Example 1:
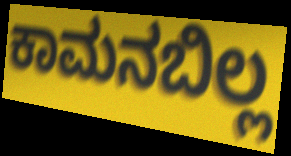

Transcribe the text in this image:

ಕಾಮನಬಿಲ್ಲ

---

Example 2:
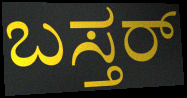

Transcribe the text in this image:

ಬಸ್ತರ್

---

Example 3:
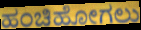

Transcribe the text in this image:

ಹಂಚಿಹೋಗಲು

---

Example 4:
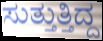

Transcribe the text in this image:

ಸುತ್ತುತ್ತಿದ್ದ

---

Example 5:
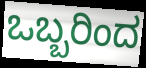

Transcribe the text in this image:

ಒಬ್ಬರಿಂದ